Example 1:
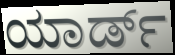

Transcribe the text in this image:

ಯಾರ್ಡ್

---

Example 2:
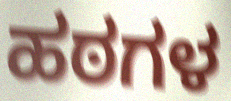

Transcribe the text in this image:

ಹಠಗಳ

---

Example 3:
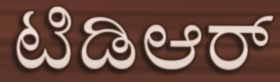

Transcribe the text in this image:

ಟಿಡಿಆರ್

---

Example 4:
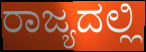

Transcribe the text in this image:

ರಾಜ್ಯದಲ್ಲಿ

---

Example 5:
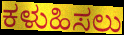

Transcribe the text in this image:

ಕಳುಹಿಸಲು